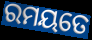
ରମୟତେ